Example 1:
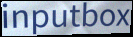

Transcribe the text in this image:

inputbox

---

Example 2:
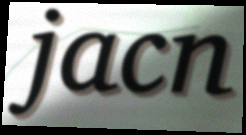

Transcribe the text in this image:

jacn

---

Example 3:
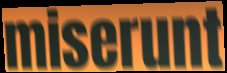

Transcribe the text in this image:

miserunt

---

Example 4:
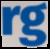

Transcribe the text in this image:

rg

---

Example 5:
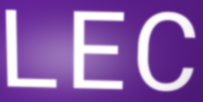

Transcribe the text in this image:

LEC